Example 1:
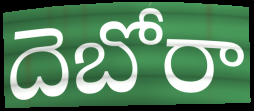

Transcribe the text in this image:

దెబోరా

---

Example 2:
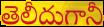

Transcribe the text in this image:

తెలీదుగానీ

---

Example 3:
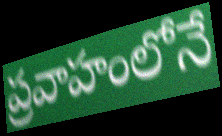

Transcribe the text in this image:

ప్రవాహంలోనే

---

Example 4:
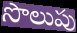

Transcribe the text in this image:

సొలుపు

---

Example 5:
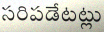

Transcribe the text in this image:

సరిపడేటట్లు